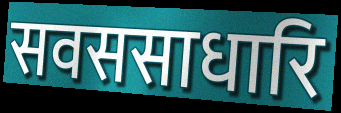
सवससाधारि